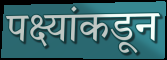
पक्ष्यांकडून